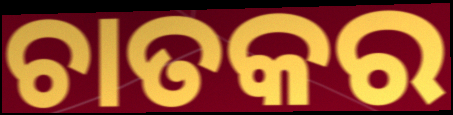
ଚାତକର